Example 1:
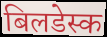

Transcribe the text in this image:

बिलडेस्क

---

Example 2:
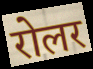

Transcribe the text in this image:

रोलर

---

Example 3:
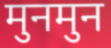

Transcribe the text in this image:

मुनमुन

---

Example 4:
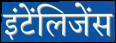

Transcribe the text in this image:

इंटेंलिजेंस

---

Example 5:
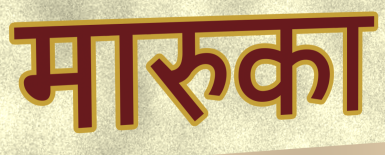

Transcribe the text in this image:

मारुका